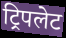
ट्रिपलेट